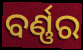
ବର୍ଣ୍ଣର